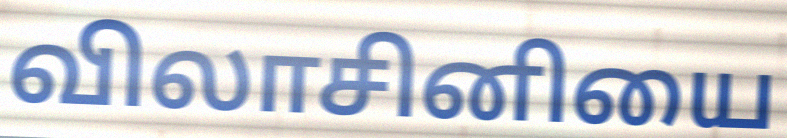
விலாசினியை